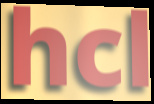
hcl